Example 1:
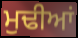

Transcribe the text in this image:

ਮੁਢੀਆਂ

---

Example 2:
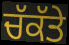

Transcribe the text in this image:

ਚੱਕੱਤੇ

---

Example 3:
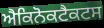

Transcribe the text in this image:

ਐਕਿਨੋਕਟੈਕਟਸ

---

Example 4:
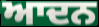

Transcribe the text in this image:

ਆਦਨ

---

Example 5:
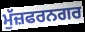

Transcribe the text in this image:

ਮੁੱਜ਼ਫਰਨਗਰ